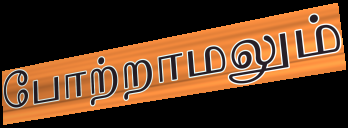
போற்றாமலும்